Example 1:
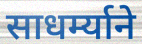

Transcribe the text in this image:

साधर्म्याने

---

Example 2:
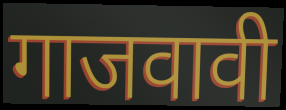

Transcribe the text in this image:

गाजवावी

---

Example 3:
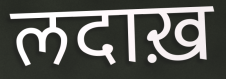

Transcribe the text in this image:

लदाख़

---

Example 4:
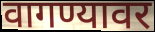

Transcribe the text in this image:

वागण्यावर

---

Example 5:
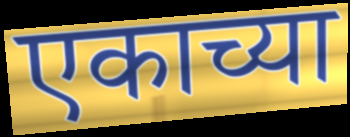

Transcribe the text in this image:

एकाच्या